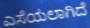
ಎಸೆಯಲಾಗಿದೆ